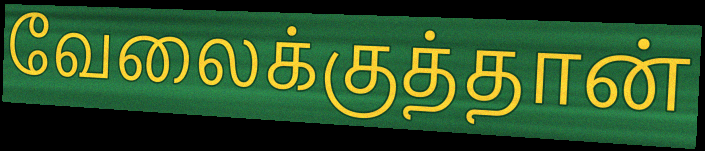
வேலைக்குத்தான்